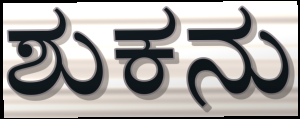
ಶುಕನು